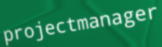
projectmanager